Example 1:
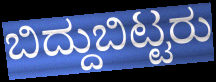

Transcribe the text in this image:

ಬಿದ್ದುಬಿಟ್ಟರು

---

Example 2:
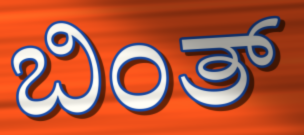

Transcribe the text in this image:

ಬಿಂತ್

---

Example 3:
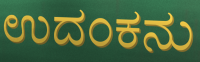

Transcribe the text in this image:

ಉದಂಕನು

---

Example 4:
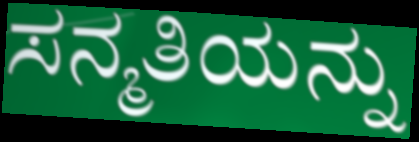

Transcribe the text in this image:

ಸನ್ಮತಿಯನ್ನು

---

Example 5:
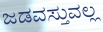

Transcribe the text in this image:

ಜಡವಸ್ತುವಲ್ಲ